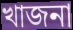
খাজনা